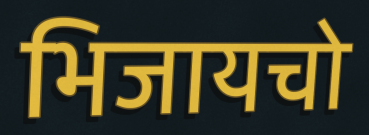
भिजायचो